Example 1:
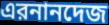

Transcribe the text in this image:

এরনানদেজ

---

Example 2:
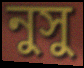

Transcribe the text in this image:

নুসু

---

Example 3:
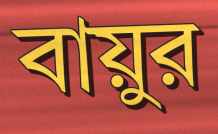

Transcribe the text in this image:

বায়ুর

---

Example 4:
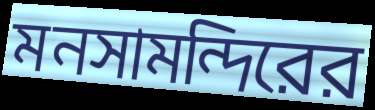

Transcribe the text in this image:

মনসামন্দিরের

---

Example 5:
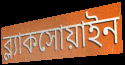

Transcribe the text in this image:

ব্ল্যাকসোয়াইন